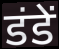
डंडें